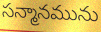
సన్మానమును